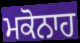
ਮਕੋਨਾਹ